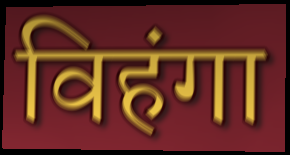
विहंगा